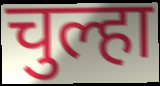
चुल्हा